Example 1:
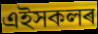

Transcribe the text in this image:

এইসকলৰ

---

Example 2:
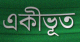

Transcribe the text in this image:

একীভূত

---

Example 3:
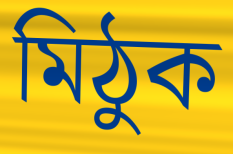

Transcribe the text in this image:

মিঠুক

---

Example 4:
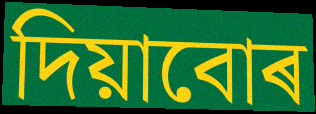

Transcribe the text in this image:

দিয়াবোৰ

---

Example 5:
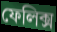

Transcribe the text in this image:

ফেলিক্স